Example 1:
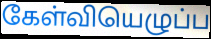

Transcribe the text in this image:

கேள்வியெழுப்ப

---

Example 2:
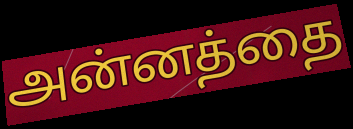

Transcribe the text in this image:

அன்னத்தை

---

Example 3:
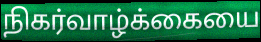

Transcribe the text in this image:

நிகர்வாழ்க்கையை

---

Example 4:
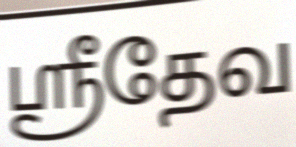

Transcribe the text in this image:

ஸ்ரீதேவ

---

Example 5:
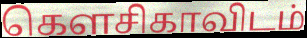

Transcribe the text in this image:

கௌசிகாவிடம்